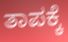
ತಾಪಕ್ಕೆ